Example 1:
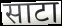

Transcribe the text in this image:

साटा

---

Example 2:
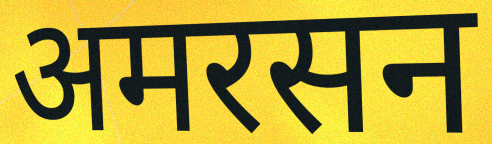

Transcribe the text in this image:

अमरसन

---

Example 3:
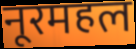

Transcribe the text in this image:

नूरमहल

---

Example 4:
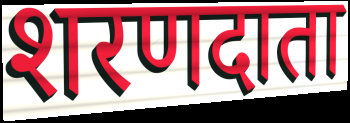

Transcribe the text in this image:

शरणदाता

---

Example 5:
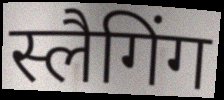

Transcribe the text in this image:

स्लैगिंग